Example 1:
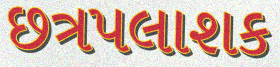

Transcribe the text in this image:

છત્રપલાશક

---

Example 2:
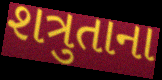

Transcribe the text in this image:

શત્રુતાના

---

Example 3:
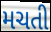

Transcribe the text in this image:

મચતી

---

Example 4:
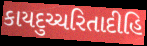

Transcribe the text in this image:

કાયદુચ્ચરિતાદીહિ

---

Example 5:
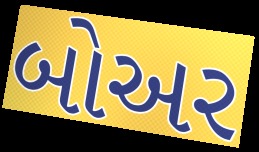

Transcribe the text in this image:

બોઅર